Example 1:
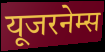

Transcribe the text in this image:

यूजरनेम्स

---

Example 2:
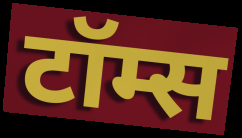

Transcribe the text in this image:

टॉम्स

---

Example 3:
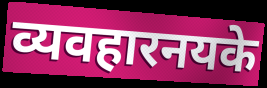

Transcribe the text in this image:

व्यवहारनयके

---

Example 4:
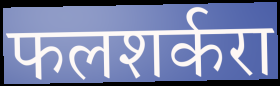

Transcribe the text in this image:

फलशर्करा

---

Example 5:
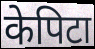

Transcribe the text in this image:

केपिटा